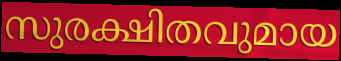
സുരക്ഷിതവുമായ